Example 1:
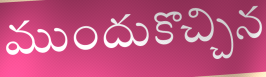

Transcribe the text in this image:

ముందుకొచ్చిన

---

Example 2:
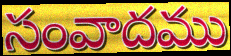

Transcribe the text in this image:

సంవాదము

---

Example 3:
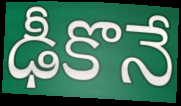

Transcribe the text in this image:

ఢీకొనే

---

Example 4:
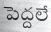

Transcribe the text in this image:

పెద్దలే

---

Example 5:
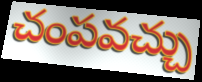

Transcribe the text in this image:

చంపవచ్చు